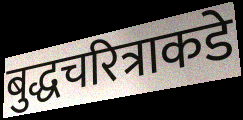
बुद्धचरित्राकडे